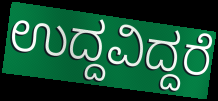
ಉದ್ದವಿದ್ದರೆ